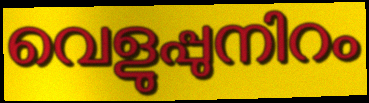
വെളുപ്പുനിറം